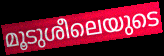
മൂടുശീലെയുടെ